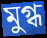
মুগ্ধ